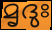
മൃദുഃ